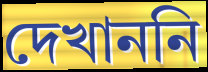
দেখাননি